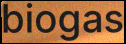
biogas